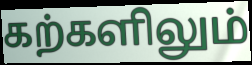
கற்களிலும்